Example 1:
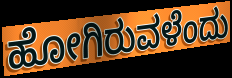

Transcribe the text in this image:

ಹೋಗಿರುವಳೆಂದು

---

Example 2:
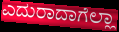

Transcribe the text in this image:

ಎದುರಾದಾಗೆಲ್ಲಾ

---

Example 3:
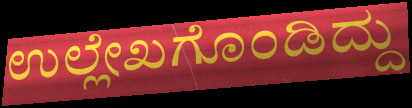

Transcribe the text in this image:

ಉಲ್ಲೇಖಗೊಂಡಿದ್ದು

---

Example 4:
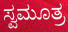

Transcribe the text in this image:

ಸ್ವಮೂತ್ರ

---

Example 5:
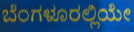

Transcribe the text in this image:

ಬೆಂಗಳೂರಲ್ಲಿಯೇ